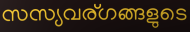
സസ്യവര്ഗങ്ങളുടെ